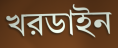
খরডাইন